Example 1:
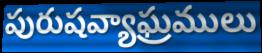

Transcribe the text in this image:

పురుషవ్యాఘ్రములు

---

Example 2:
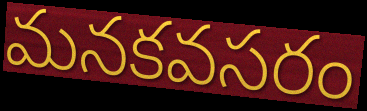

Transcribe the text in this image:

మనకవసరం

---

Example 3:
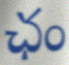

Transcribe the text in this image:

ఛం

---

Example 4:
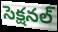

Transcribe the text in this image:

సెక్షనల్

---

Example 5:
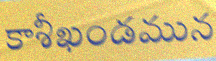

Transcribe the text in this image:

కాశీఖండమున